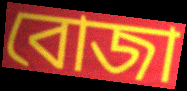
বোজা